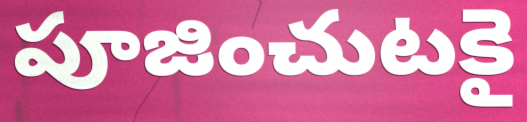
పూజించుటకై